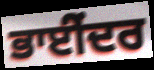
ਭਾਈੇਂਦਰ